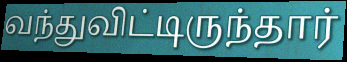
வந்துவிட்டிருந்தார்